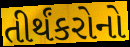
તીર્થંકરોનો